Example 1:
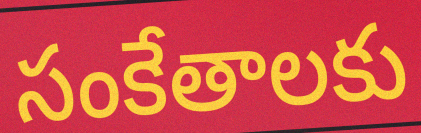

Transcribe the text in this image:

సంకేతాలకు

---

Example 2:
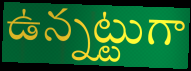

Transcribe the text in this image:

ఉన్నట్టుగా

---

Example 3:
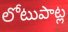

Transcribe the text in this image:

లోటుపాట్ల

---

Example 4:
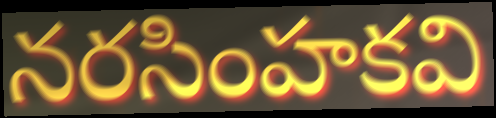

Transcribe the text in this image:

నరసింహకవి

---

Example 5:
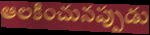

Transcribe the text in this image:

ఆలకించునప్పుడు